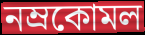
নম্রকোমল